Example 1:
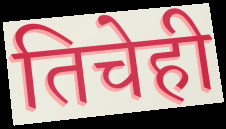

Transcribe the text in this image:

तिचेही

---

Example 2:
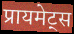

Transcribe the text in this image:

प्रायमेट्स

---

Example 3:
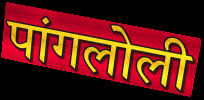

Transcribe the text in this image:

पांगलोली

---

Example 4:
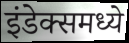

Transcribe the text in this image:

इंडेक्समध्ये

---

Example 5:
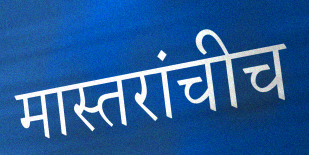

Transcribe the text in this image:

मास्तरांचीच